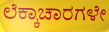
ಲೆಕ್ಕಾಚಾರಗಳೇ